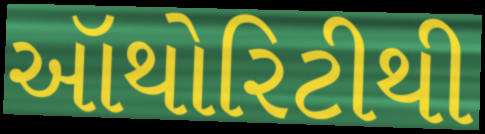
ઑથોરિટીથી